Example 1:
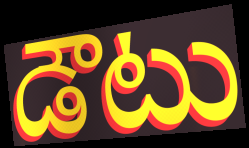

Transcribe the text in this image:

డౌటు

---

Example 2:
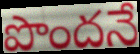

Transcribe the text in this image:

పొందనే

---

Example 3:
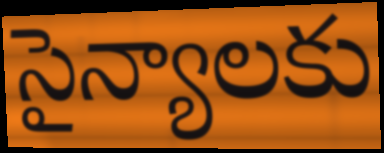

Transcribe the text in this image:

సైన్యాలకు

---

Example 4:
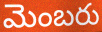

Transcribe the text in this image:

మెంబరు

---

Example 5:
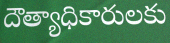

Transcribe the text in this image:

దౌత్యాధికారులకు